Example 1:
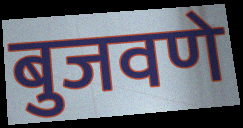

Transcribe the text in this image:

बुजवणे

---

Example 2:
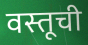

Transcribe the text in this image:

वस्तूची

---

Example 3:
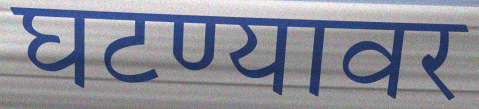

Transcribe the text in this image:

घटण्यावर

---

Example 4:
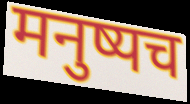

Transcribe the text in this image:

मनुष्यच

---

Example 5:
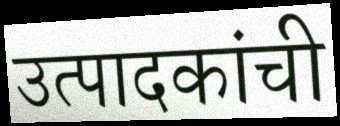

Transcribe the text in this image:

उत्पादकांची